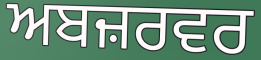
ਅਬਜ਼ਰਵਰ